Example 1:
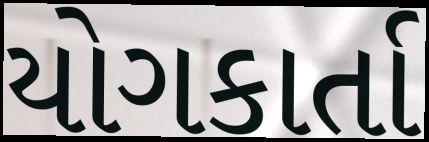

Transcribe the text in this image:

યોગકાર્તા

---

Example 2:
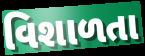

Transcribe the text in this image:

વિશાળતા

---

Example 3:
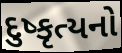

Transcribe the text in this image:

દુષ્કૃત્યનો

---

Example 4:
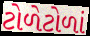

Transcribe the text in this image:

ટોળેટોળાં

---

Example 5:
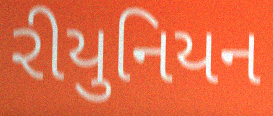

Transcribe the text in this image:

રીયુનિયન